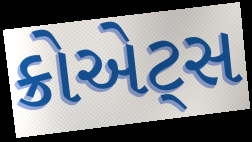
ક્રોએટ્સ